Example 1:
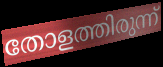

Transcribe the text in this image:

തോളത്തിരുന്ന്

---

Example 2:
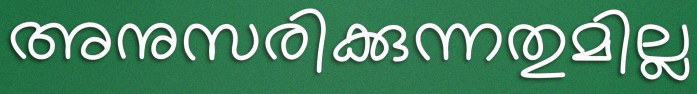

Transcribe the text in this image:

അനുസരിക്കുന്നതുമില്ല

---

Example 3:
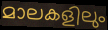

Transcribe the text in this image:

മാലകളിലും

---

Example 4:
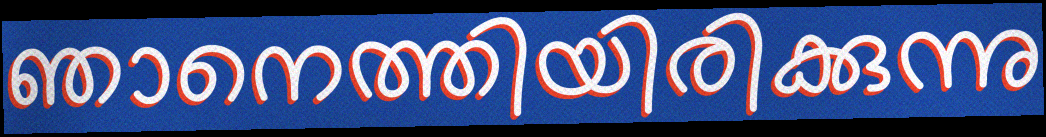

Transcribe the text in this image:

ഞാനെത്തിയിരിക്കുന്നു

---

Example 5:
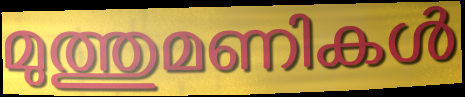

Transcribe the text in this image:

മുത്തുമണികൾ